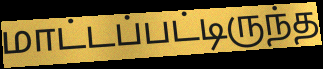
மாட்டப்பட்டிருந்த